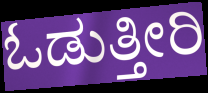
ಓಡುತ್ತೀರಿ